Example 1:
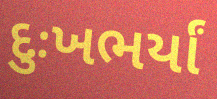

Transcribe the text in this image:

દુઃખભર્યાં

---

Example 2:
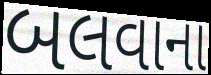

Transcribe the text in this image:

બલવાના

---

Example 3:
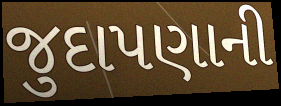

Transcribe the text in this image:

જુદાપણાની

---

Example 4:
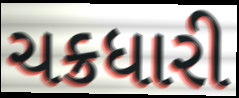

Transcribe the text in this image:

ચક્રધારી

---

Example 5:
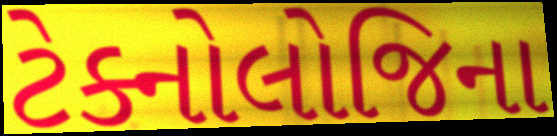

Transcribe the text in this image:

ટેક્નોલોજિના